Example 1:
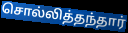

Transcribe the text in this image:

சொல்லித்தந்தார்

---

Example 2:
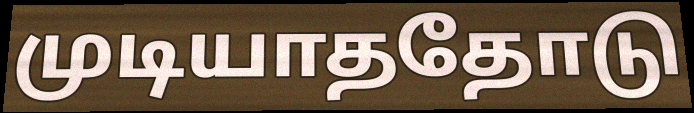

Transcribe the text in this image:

முடியாததோடு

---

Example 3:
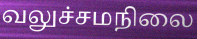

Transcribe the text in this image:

வலுச்சமநிலை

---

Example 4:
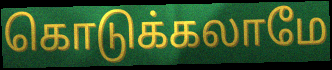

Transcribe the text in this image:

கொடுக்கலாமே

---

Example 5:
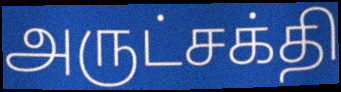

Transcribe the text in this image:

அருட்சக்தி